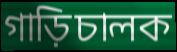
গাড়িচালক